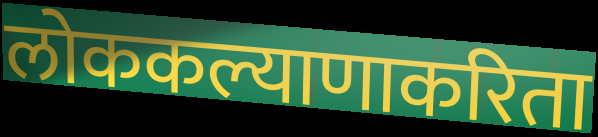
लोककल्याणाकरिता